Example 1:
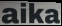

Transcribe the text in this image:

aika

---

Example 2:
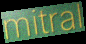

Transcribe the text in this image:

mitral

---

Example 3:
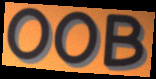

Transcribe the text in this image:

OOB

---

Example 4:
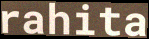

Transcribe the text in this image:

rahita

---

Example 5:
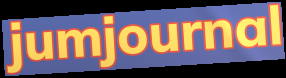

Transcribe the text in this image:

jumjournal